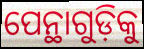
ପେନ୍ଥାଗୁଡ଼ିକୁ